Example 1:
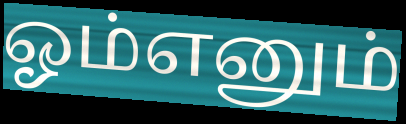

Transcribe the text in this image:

ஓம்எனும்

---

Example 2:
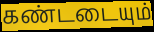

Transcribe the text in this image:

கண்டடையும்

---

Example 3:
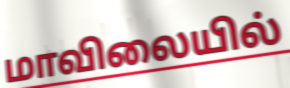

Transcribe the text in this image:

மாவிலையில்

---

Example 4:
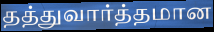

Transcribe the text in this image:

தத்துவார்த்தமான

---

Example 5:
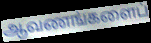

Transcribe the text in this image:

ஆவணங்களைப்